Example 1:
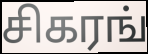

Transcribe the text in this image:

சிகரங்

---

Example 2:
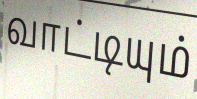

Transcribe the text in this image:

வாட்டியும்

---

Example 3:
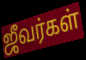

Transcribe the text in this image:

ஜீவர்கள்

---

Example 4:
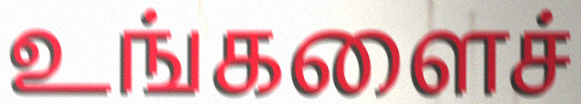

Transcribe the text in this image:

உங்களைச்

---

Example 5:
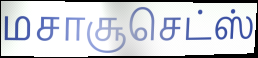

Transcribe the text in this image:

மசாசூசெட்ஸ்